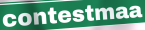
contestmaa